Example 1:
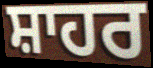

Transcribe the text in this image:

ਸ਼ਾਹਰ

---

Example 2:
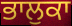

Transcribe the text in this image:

ਭਾਲੁਕਾ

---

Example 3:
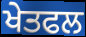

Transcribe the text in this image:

ਖੇਤਫਲ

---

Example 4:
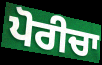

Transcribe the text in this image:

ਪੋਰੀਚਾ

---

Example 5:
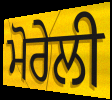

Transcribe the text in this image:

ਮੋਰੇਲੀ